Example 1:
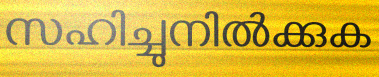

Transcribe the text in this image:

സഹിച്ചുനിൽക്കുക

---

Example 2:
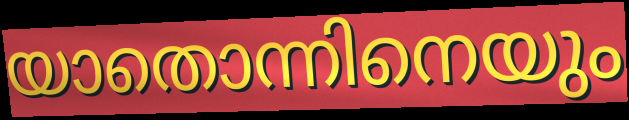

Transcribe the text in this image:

യാതൊന്നിനെയും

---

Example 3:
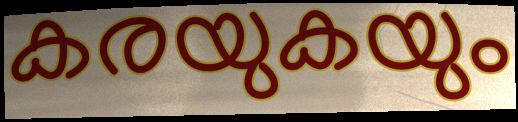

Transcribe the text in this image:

കരയുകയും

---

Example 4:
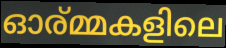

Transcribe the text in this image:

ഓര്മ്മകളിലെ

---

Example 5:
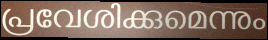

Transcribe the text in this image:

പ്രവേശിക്കുമെന്നും